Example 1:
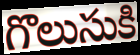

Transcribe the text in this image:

గొలుసుకి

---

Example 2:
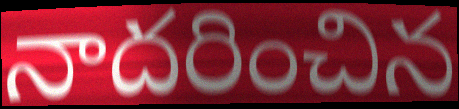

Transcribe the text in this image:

నాదరించిన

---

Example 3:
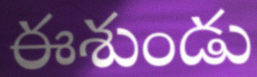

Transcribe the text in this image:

ఈశుండు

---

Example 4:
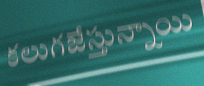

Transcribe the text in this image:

కలుగజేస్తున్నాయి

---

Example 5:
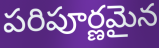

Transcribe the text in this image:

పరిపూర్ణమైన